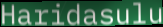
Haridasulu